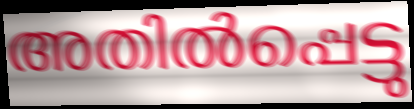
അതിൽപ്പെട്ടു